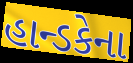
હાન્ડકેના